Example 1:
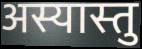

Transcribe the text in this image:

अस्यास्तु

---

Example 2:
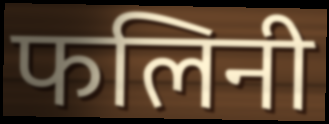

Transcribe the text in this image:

फलिनी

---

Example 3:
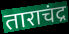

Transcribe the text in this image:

ताराचंद्र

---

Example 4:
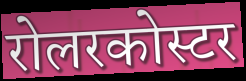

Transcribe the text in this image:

रोलरकोस्टर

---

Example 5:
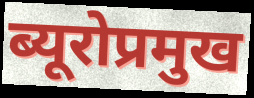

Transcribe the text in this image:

ब्यूरोप्रमुख